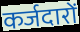
कर्जदारों